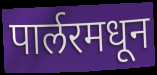
पार्लरमधून